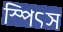
স্পিৎস